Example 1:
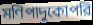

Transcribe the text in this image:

মণিপাদুকোপরি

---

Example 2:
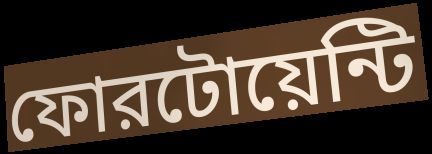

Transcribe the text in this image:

ফোরটোয়েন্টি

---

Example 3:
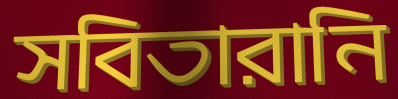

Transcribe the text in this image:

সবিতারানি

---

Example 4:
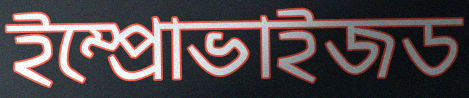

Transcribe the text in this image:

ইম্প্রোভাইজড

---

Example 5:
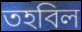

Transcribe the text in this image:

তহবিল